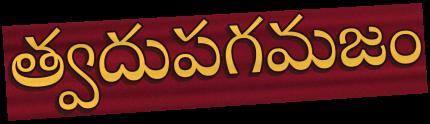
త్వదుపగమజం